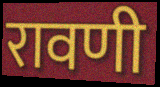
रावणी